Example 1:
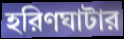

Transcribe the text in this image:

হরিণঘাটার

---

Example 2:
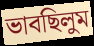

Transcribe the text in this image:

ভাবছিলুম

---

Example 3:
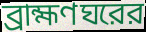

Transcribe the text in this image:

ব্রাহ্মণঘরের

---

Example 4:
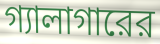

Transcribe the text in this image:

গ্যালাগারের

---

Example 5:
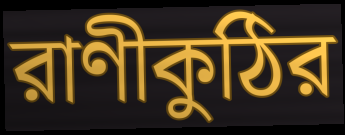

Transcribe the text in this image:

রাণীকুঠির